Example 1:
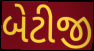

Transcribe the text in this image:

બેટીજી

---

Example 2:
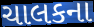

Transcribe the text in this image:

ચાલકના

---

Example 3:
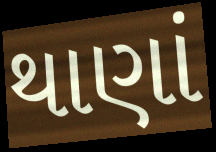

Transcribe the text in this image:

થાણાં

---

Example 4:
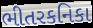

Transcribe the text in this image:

ભીતરકનિકા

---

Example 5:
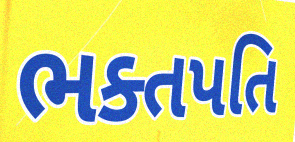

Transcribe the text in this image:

ભક્તપતિ